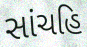
સાંચહિ